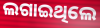
ଲଗାଇଥିଲେ